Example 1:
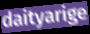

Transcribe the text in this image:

daityarige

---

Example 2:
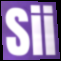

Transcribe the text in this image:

Sii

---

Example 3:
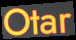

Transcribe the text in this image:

Otar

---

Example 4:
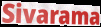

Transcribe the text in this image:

Sivarama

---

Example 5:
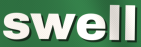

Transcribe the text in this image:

swell